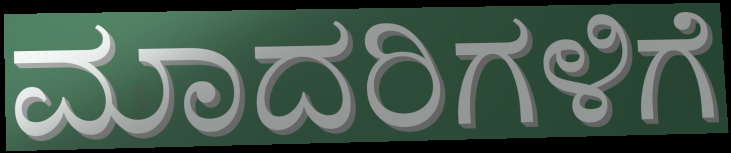
ಮಾದರಿಗಳಿಗೆ